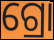
ଗ୍ରୋ